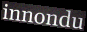
innondu